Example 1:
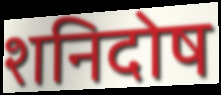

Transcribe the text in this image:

शनिदोष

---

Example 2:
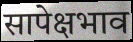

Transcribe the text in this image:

सापेक्षभाव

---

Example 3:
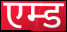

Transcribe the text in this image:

एम्ड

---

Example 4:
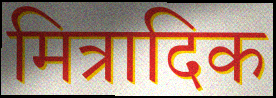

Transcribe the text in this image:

मित्रादिक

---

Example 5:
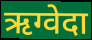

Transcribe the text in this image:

ऋग्वेदा